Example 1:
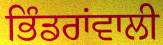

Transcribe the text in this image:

ਭਿੰਡਰਾਂਵਾਲੀ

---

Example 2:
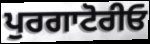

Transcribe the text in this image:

ਪੁਰਗਾਟੋਰੀਓ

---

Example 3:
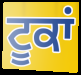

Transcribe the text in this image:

ਟੂਕਾਂ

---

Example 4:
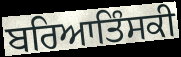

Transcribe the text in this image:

ਬਰਿਆਤਿੰਸਕੀ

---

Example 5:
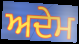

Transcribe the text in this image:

ਅਦੇਮ